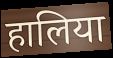
हालिया